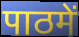
पाठमें